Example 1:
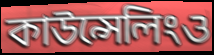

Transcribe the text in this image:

কাউন্সেলিংও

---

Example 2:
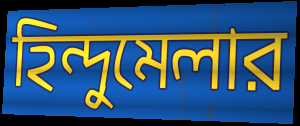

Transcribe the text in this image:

হিন্দুমেলার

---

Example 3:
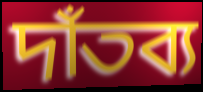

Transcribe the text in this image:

দাঁতব্য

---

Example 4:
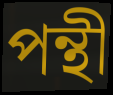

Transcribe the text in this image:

পন্থী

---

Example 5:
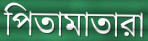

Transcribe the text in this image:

পিতামাতারা